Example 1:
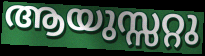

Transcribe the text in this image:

ആയുസ്സറ്റു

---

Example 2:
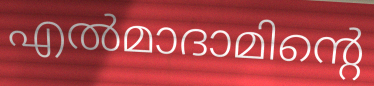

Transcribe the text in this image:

എൽമാദാമിന്റെ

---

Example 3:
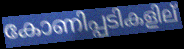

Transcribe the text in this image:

കോണിപ്പടികളില്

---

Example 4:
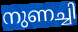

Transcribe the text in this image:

നുണച്ചി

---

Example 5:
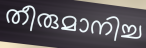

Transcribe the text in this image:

തീരുമാനിച്ച